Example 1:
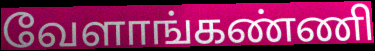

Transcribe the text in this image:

வேளாங்கண்ணி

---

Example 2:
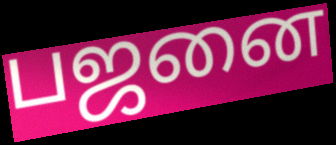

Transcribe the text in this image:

பஜனை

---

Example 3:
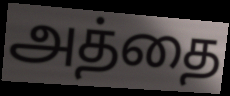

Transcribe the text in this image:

அத்தை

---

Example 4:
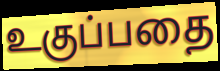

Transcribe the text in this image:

உகுப்பதை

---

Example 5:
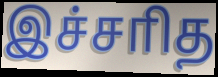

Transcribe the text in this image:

இச்சரித